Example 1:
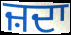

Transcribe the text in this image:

ਜ਼ਦਾ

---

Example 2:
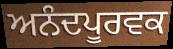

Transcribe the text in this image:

ਅਨੰਦਪੂਰਵਕ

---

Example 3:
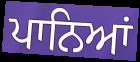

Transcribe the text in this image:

ਪਾਨਿਆਂ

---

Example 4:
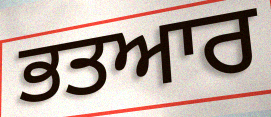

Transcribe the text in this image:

ਭਤਆਰ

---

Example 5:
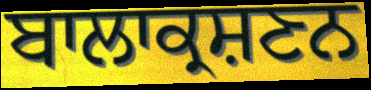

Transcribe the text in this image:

ਬਾਲਾਕ੍ਰਸ਼ਣਨ